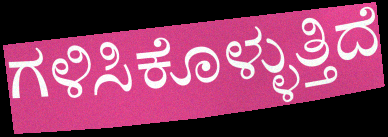
ಗಳಿಸಿಕೊಳ್ಳುತ್ತಿದೆ